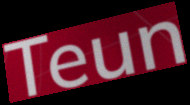
Teun